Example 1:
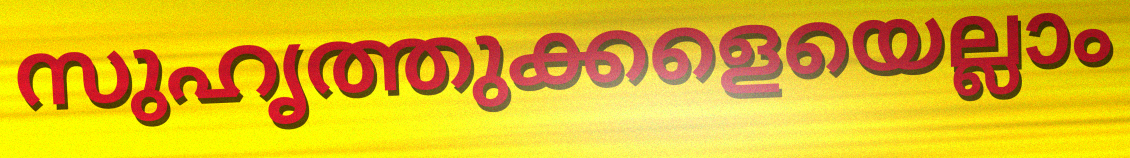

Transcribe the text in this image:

സുഹൃത്തുക്കളെയെല്ലാം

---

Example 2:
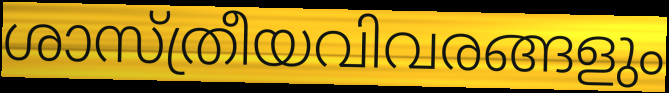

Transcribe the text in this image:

ശാസ്ത്രീയവിവരങ്ങളും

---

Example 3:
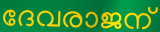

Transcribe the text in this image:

ദേവരാജന്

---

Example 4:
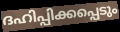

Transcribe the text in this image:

ദഹിപ്പിക്കപ്പെടും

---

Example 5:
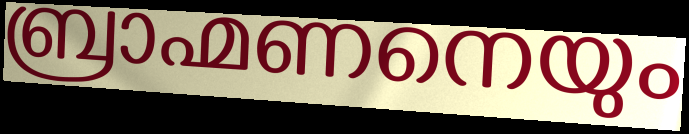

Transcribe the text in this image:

ബ്രാഹ്മണനെയും